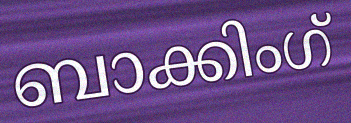
ബാക്കിംഗ്